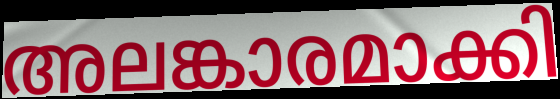
അലങ്കാരമാക്കി